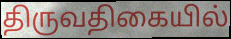
திருவதிகையில்